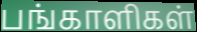
பங்காளிகள்